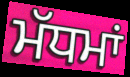
ਮੱਧਮਾਂ